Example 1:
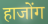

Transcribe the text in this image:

हाजोंग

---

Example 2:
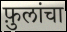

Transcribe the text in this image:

फ़ुलांचा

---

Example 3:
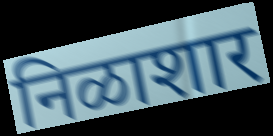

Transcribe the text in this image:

निळाशार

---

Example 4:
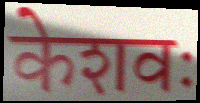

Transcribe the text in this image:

केशवः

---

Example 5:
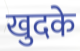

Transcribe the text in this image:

खुदके